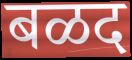
बळद